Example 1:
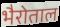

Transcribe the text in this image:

भैरोताल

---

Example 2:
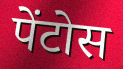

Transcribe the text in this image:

पेंटोस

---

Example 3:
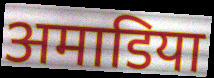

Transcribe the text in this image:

अमाडिया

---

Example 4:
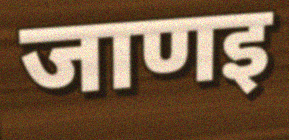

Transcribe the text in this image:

जाणइ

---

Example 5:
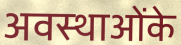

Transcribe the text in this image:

अवस्थाओंके